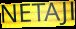
NETAJI